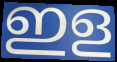
ഇള